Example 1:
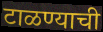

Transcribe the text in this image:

टाळण्याची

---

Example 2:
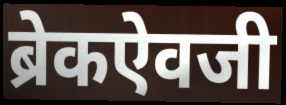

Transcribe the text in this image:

ब्रेकऐवजी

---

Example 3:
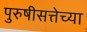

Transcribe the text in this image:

पुरुषीसत्तेच्या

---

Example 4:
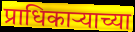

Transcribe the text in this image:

प्राधिकाऱ्याच्या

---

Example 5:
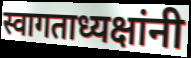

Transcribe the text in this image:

स्वागताध्यक्षांनी